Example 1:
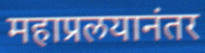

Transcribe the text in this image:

महाप्रलयानंतर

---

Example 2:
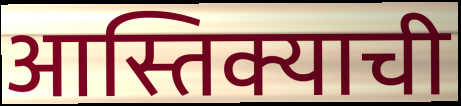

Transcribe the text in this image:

आस्तिक्याची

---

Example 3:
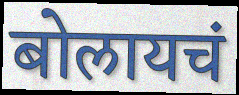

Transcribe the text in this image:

बोलायचं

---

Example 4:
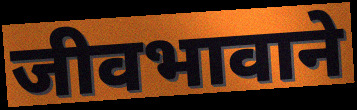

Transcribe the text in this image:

जीवभावाने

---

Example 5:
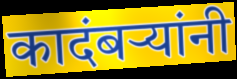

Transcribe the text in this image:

कादंबऱ्यांनी